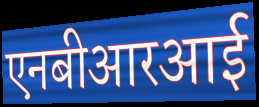
एनबीआरआई